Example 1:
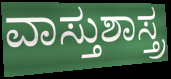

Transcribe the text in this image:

ವಾಸ್ತುಶಾಸ್ತ್ರ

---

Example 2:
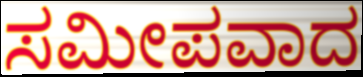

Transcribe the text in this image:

ಸಮೀಪವಾದ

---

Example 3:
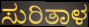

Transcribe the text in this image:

ಸುರಿತಾಳ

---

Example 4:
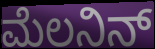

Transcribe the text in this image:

ಮೆಲನಿನ್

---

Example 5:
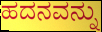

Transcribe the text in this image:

ಹದನವನ್ನು